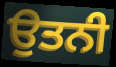
ਉਤਨੀ